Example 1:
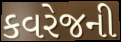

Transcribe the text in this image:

કવરેજની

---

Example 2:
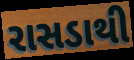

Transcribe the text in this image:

રાસડાથી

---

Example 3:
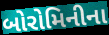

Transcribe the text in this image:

બોરોમિનીના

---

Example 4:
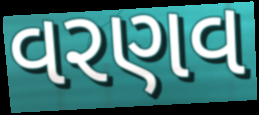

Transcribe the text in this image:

વરણવ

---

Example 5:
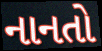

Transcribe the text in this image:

નાનતો